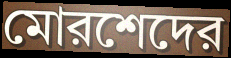
মোরশেদের